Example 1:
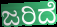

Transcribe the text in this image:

ಜರಿದೆ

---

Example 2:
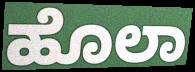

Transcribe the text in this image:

ಹೊಲಾ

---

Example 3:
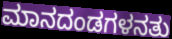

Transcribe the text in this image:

ಮಾನದಂಡಗಳನತು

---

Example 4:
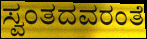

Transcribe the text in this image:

ಸ್ವಂತದವರಂತೆ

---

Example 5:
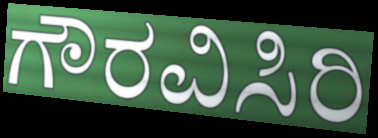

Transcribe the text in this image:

ಗೌರವಿಸಿರಿ